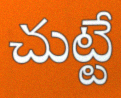
చుట్టే